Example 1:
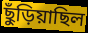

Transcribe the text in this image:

ছুঁড়িয়াছিল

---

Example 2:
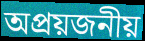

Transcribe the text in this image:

অপ্রয়জনীয়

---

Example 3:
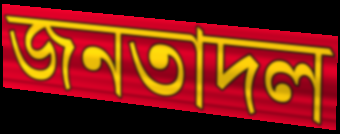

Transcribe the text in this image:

জনতাদল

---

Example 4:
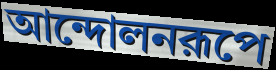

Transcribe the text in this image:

আন্দোলনরূপে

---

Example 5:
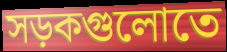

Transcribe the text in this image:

সড়কগুলোতে